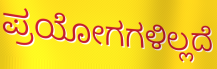
ಪ್ರಯೋಗಗಳಿಲ್ಲದೆ